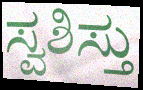
ಸ್ವಶಿಸ್ತು